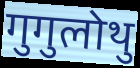
गुगुलोथु